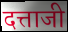
दत्ताजी